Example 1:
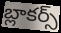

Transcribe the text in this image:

బ్లాకర్స్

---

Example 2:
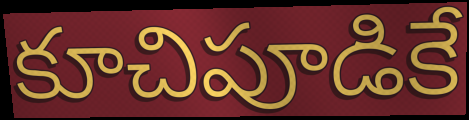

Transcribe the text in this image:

కూచిపూడికే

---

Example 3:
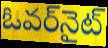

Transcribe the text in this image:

ఓవర్‌నైట్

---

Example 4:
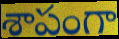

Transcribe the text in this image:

శాపంగా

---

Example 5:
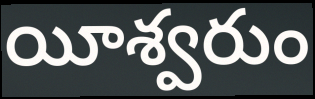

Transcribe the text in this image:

యీశ్వరుం